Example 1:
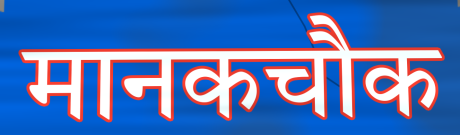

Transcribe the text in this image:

मानकचौक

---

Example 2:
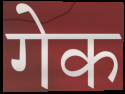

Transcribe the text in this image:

गेक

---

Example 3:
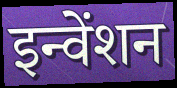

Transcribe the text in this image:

इन्वेंशन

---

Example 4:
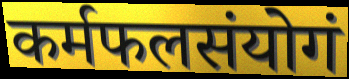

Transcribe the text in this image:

कर्मफलसंयोगं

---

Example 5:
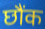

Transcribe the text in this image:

छौंक